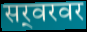
सर्वरवर